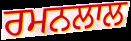
ਰਮਨਲਾਲ